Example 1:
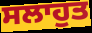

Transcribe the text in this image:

ਸਲਾਹੁਤ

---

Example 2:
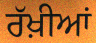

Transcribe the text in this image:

ਰੱਖ਼ੀਆਂ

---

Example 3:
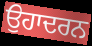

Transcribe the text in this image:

ਉਹਾਦਰਨ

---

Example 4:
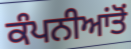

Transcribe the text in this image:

ਕੰਪਨੀਆਂਤੋਂ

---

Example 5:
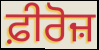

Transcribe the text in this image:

ਫ਼ੀਰੋਜ਼